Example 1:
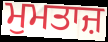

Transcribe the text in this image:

ਮੁਮਤਾਜ਼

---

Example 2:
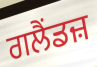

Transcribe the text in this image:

ਗਲੈਂਡਜ਼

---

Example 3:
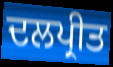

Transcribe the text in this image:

ਦਲਪ੍ਰੀਤ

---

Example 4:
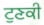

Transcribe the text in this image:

ਟੁਣਕੀ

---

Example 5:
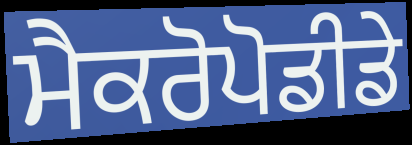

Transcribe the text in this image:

ਮੈਕਰੋਪੋਡੀਡੇ